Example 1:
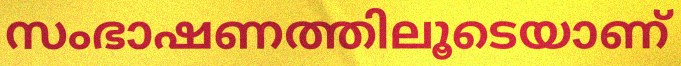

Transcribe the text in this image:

സംഭാഷണത്തിലൂടെയാണ്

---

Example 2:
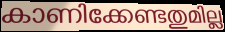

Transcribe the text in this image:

കാണിക്കേണ്ടതുമില്ല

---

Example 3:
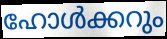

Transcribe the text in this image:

ഹോൾക്കറും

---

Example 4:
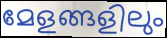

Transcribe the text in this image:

മേളങ്ങളിലും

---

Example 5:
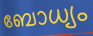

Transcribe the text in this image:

ബോധ്യം